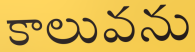
కాలువను